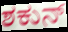
ಶಕುನ್